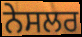
ਨੇਸਲਰ